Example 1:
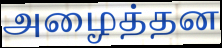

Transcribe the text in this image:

அழைத்தன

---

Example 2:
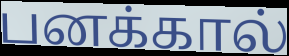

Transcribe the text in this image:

பனக்கால்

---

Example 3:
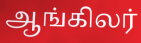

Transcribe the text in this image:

ஆங்கிலர்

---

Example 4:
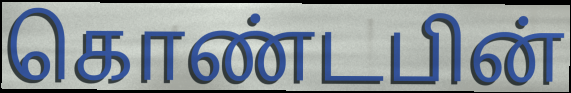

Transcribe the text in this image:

கொண்டபின்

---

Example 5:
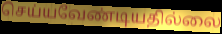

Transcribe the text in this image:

செய்யவேண்டியதில்லை